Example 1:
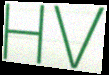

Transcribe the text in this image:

HV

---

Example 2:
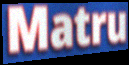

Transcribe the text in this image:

Matru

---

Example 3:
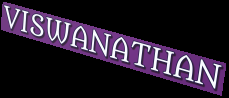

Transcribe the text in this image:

VISWANATHAN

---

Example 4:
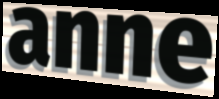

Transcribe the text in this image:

anne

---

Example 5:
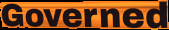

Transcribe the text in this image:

Governed